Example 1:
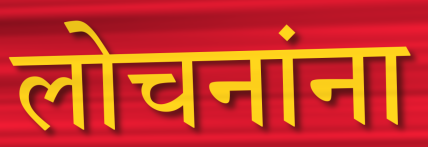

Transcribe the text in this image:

लोचनांना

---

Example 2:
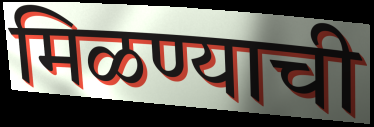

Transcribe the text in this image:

मिळण्याची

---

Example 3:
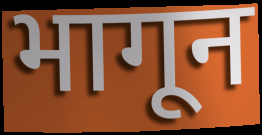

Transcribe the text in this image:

भागून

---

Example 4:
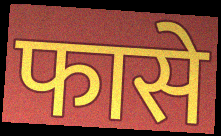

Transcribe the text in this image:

फासे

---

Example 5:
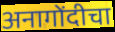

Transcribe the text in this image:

अनागोंदीचा